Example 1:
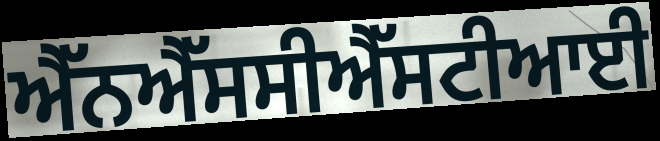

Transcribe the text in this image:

ਐੱਨਐੱਸਸੀਐੱਸਟੀਆਈ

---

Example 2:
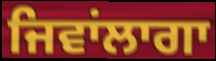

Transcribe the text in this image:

ਜਿਵਾਂਲਾਗਾ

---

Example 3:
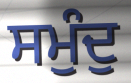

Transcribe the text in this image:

ਸਮੁੰਦੁ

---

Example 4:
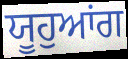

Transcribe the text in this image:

ਯੂਹੁਆਂਗ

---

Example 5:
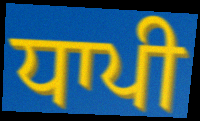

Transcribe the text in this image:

ਧਾਪੀ